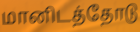
மானிடத்தோடு